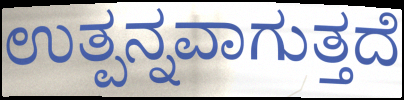
ಉತ್ಪನ್ನವಾಗುತ್ತದೆ